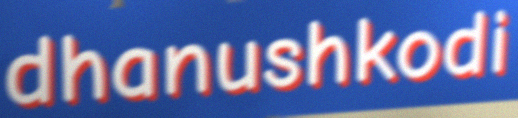
dhanushkodi